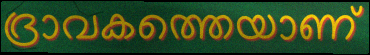
ദ്രാവകത്തെയാണ്